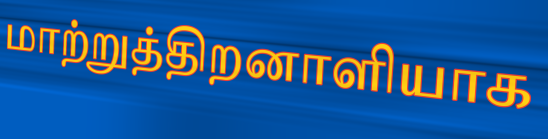
மாற்றுத்திறனாளியாக